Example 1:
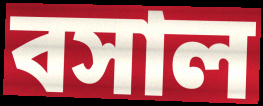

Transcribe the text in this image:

বসাল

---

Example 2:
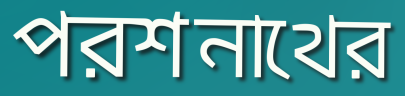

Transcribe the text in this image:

পরশনাথের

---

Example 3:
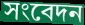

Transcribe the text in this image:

সংবেদন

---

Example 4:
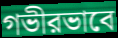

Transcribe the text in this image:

গভীরভাবে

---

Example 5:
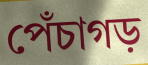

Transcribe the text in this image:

পেঁচাগড়